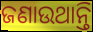
ଜଣାଉଥାନ୍ତି